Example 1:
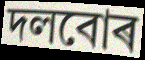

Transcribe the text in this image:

দলবোৰ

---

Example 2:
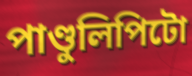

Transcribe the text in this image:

পাণ্ডুলিপিটো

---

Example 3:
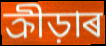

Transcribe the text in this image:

ক্ৰীড়াৰ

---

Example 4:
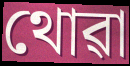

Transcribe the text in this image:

থোৱা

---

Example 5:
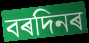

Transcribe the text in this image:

বৰদিনৰ